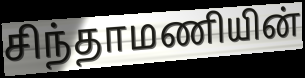
சிந்தாமணியின்